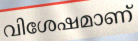
വിശേഷമാണ്